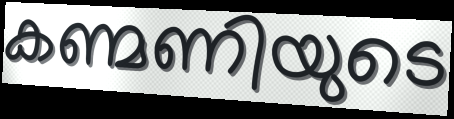
കണ്മണിയുടെ